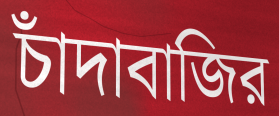
চাঁদাবাজির